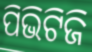
ପିଭିଟିଜି